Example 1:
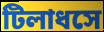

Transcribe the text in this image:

টিলাধসে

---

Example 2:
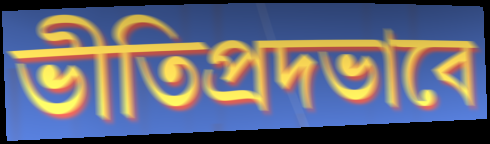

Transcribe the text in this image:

ভীতিপ্রদভাবে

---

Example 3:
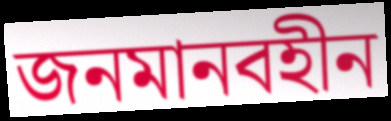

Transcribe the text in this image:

জনমানবহীন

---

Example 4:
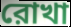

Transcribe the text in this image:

রোখা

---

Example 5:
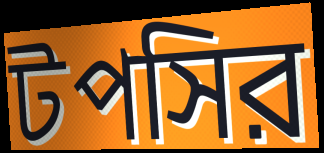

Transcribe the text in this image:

টপসির